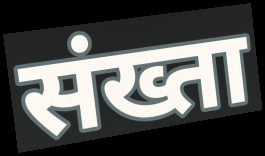
संख्ता